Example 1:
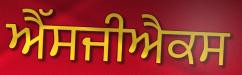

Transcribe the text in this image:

ਐੱਸਜੀਐਕਸ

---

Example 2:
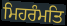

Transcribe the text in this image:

ਮਿਹਰੰਮਤਿ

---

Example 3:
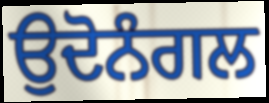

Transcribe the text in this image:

ਉਦੋਨੰਗਲ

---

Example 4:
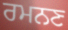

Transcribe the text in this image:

ਰਮਨਣ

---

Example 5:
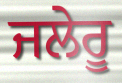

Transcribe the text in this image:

ਜਲੇਰੂ